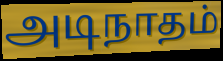
அடிநாதம்